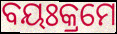
ବୟଃକ୍ରମେ